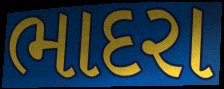
ભાદરા